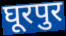
घूरपुर